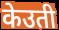
केउती